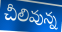
చీలివున్న